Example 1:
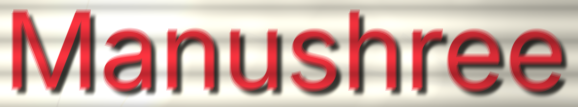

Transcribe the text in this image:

Manushree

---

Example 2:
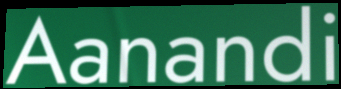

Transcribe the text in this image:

Aanandi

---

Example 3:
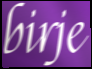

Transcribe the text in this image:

birje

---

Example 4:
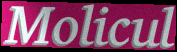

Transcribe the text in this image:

Molicul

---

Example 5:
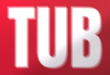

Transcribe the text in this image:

TUB